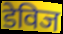
डेविज